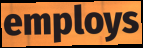
employs